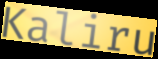
Kaliru